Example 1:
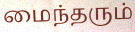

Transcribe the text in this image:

மைந்தரும்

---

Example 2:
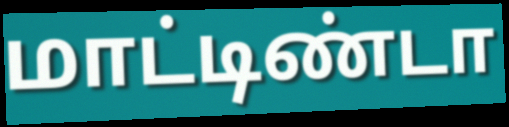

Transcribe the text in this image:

மாட்டிண்டா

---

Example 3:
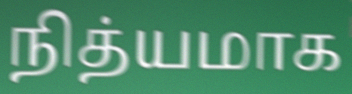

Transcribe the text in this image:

நித்யமாக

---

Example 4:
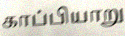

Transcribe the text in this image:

காப்பியாறு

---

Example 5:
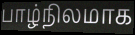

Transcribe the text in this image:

பாழ்நிலமாக